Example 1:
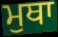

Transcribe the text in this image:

ਮੁਥਾ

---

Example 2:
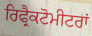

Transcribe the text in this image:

ਰਿਫ੍ਰੈਕਟੋਮੀਟਰਾਂ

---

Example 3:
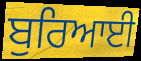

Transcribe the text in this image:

ਬੁਰਿਆਈ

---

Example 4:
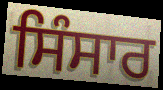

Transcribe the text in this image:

ਸਿੰਸਾਰ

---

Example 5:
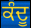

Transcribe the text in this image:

ਕੰਦੂ